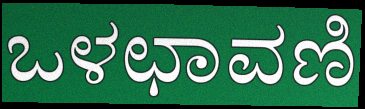
ಒಳಛಾವಣಿ